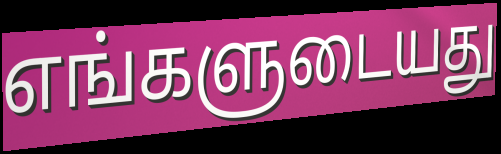
எங்களுடையது